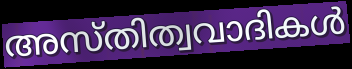
അസ്തിത്വവാദികൾ